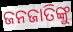
ଜନଜାତିଙ୍କୁ